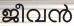
ജീവൻ